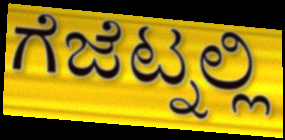
ಗೆಜೆಟ್ನಲ್ಲಿ